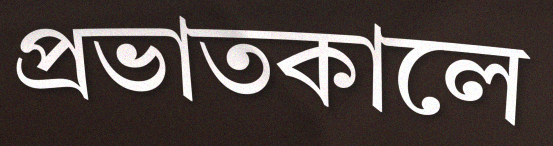
প্রভাতকালে